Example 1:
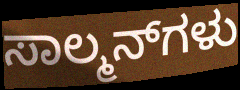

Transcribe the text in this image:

ಸಾಲ್ಮನ್‌ಗಳು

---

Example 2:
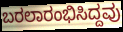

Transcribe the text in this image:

ಬರಲಾರಂಭಿಸಿದ್ದವು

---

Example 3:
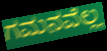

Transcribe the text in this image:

ಗಮನವೆಲ್ಲ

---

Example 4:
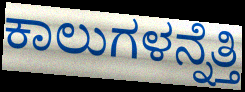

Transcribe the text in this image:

ಕಾಲುಗಳನ್ನೆತ್ತಿ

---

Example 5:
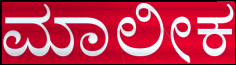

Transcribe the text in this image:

ಮಾಲೀಕ